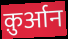
क़ुर्आन